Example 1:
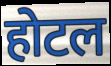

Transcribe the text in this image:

होटल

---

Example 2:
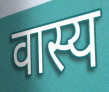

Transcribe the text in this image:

वास्य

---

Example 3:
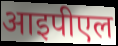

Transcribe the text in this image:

आइपीएल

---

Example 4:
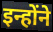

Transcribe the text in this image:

इन्होंने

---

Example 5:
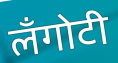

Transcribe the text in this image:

लँगोटी